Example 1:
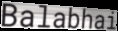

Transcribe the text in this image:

Balabhai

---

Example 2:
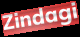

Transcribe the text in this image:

Zindagi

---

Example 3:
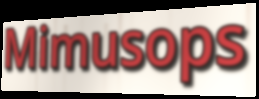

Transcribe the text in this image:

Mimusops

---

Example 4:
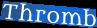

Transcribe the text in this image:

Thromb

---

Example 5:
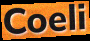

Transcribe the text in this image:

Coeli